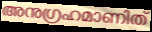
അനുഗ്രഹമാണിത്